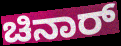
ಚಿನಾರ್